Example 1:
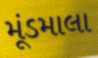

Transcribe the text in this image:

મૂંડમાલા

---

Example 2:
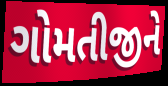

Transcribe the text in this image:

ગોમતીજીને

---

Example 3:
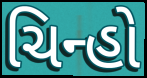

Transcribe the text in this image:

ચિન્હો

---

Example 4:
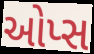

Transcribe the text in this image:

ઓપ્સ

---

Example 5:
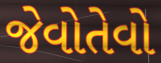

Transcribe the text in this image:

જેવોતેવો